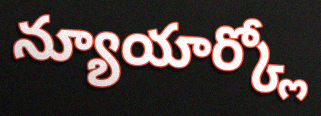
న్యూయార్క్లో